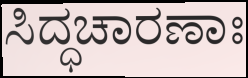
ಸಿದ್ಧಚಾರಣಾಃ